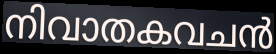
നിവാതകവചൻ